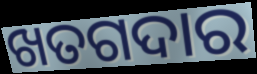
ଖତଗଦାର